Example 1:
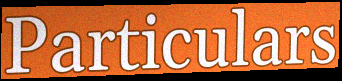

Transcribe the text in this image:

Particulars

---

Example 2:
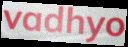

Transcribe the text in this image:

vadhyo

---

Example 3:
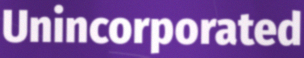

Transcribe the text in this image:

Unincorporated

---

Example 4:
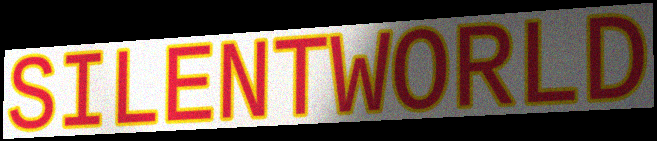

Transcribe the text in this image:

SILENTWORLD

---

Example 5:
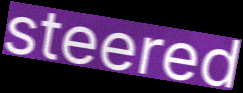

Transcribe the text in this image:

steered